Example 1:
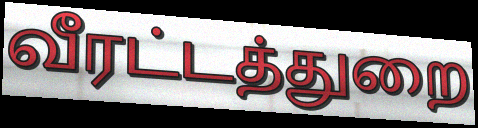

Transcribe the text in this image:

வீரட்டத்துறை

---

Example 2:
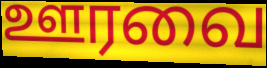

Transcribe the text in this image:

ஊரவை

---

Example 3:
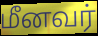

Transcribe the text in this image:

மீனவர்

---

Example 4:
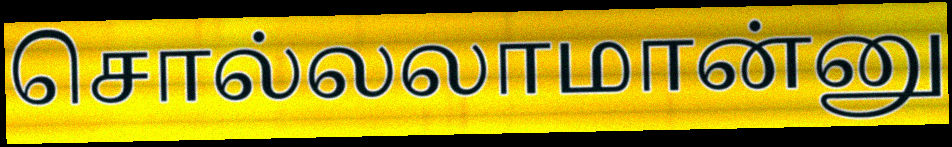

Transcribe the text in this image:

சொல்லலாமான்னு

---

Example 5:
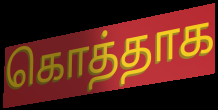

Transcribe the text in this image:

கொத்தாக